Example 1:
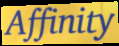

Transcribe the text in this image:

Affinity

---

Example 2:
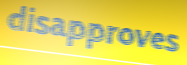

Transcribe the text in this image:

disapproves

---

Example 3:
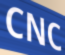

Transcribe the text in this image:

CNC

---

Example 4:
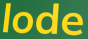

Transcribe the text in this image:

lode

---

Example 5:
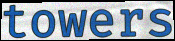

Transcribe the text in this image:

towers